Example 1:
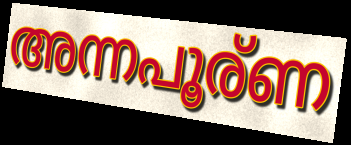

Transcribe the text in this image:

അന്നപൂര്ണ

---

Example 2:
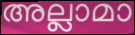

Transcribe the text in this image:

അല്ലാമാ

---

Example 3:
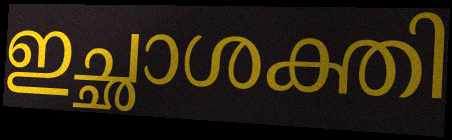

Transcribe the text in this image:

ഇച്ഛാശക്തി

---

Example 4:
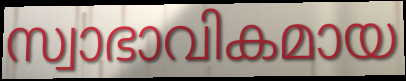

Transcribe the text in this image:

സ്വാഭാവികമായ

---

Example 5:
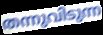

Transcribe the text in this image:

തന്നുവിടുന്ന